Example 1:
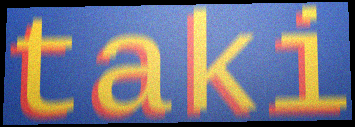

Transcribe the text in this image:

taki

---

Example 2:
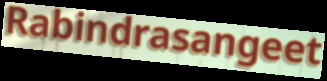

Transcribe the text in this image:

Rabindrasangeet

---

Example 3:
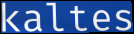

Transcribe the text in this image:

kaltes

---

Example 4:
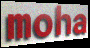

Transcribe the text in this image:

moha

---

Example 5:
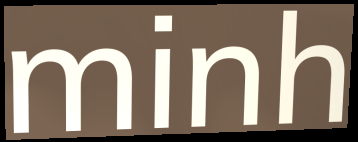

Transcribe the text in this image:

minh